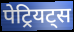
पेट्रियट्स